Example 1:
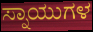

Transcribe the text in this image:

ಸ್ನಾಯುಗಳ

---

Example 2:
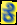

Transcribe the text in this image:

ಕೆ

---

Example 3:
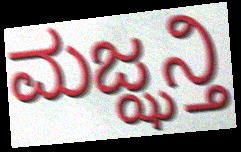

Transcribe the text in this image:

ಮಜ್ಝನ್ತಿ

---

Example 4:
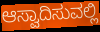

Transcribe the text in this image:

ಆಸ್ವಾದಿಸುವಲ್ಲಿ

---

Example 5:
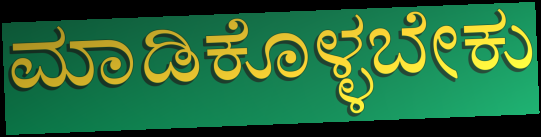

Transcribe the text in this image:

ಮಾಡಿಕೊಳ್ಳಬೇಕು